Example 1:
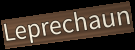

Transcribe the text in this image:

Leprechaun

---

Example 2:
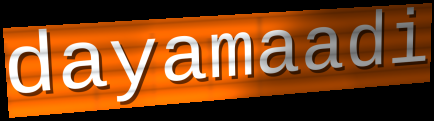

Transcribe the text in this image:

dayamaadi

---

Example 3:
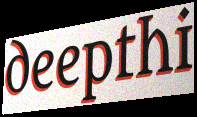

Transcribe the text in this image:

deepthi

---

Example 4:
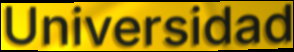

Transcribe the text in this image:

Universidad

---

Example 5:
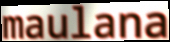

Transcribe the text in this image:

maulana